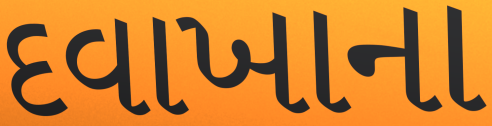
દવાખાના